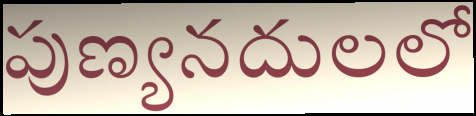
పుణ్యనదులలో